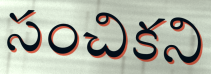
సంచికని